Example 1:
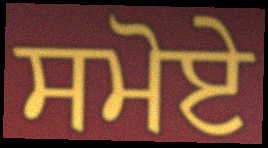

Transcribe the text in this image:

ਸਮੋਏ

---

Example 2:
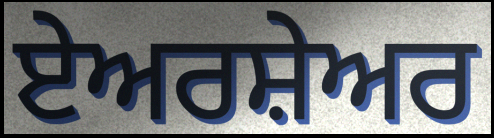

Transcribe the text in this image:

ਏਅਰਸ਼ੇਅਰ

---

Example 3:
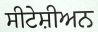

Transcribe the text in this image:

ਸੀਟੇਸ਼ੀਅਨ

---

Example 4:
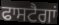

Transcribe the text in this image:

ਫਾਸਟੈਗਾਂ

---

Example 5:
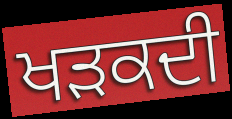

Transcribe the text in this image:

ਖੜਕਦੀ